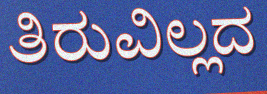
ತಿರುವಿಲ್ಲದ